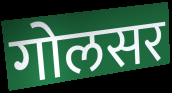
गोलसर